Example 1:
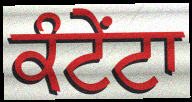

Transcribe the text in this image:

ਕੰਟੇਂਟਾ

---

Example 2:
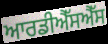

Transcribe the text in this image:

ਆਰਡੀਐੱਸਐੱਸ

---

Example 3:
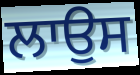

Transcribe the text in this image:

ਲਾਉਸ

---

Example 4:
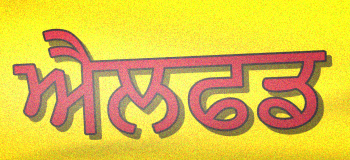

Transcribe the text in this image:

ਐਲਫਡ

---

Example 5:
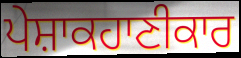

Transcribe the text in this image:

ਪੇਸ਼ਾਕਹਾਣੀਕਾਰ